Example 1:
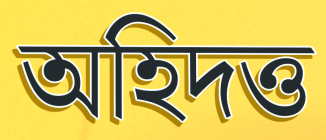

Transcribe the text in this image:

অহিদত্ত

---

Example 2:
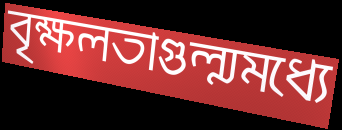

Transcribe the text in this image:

বৃক্ষলতাগুল্মমধ্যে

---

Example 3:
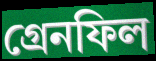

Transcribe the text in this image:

গ্রেনফিল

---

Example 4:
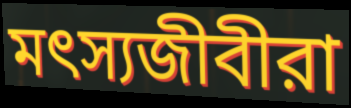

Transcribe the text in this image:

মৎস্যজীবীরা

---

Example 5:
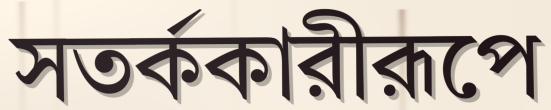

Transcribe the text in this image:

সতর্ককারীরূপে